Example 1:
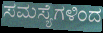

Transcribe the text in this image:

ಸಮಸ್ಯೆಗಳಿಂದ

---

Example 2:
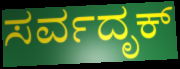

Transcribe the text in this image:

ಸರ್ವದೃಕ್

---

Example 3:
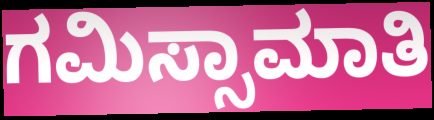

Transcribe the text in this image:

ಗಮಿಸ್ಸಾಮಾತಿ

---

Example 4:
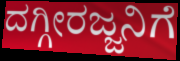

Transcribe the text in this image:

ದಗ್ಗೀರಜ್ಜನಿಗೆ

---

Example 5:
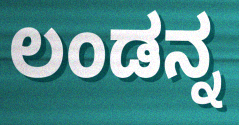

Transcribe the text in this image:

ಲಂಡನ್ನ